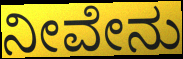
ನೀವೇನು